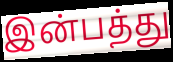
இன்பத்து